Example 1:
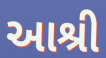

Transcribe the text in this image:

આશ્રી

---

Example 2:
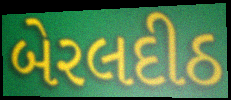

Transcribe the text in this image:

બેરલદીઠ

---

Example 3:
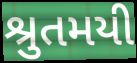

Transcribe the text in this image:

શ્રુતમયી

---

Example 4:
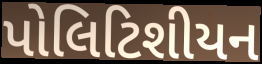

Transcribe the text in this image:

પોલિટિશીયન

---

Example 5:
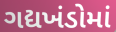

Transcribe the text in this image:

ગદ્યખંડોમાં